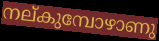
നല്കുമ്പോഴാണു